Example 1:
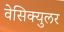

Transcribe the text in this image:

वेसिक्युलर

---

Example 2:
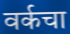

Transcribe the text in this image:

वर्कचा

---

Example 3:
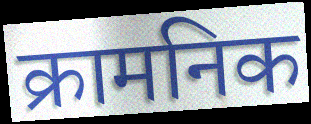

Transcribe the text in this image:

क्रामनिक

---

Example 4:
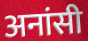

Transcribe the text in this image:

अनांसी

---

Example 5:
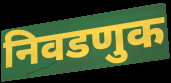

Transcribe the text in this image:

निवडणुक